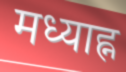
मध्याह्न